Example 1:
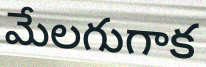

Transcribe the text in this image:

మేలగుగాక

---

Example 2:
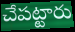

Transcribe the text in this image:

చేపట్టారు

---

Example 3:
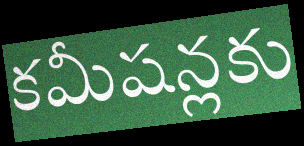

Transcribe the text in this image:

కమీషన్లకు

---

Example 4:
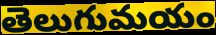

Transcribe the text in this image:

తెలుగుమయం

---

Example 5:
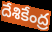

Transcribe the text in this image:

దేశికేంద్ర